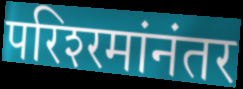
परिश्रमांनंतर